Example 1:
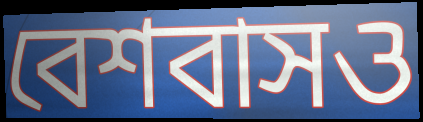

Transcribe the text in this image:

বেশবাসও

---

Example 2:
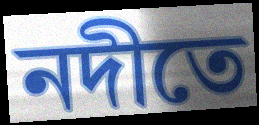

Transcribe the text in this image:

নদীতে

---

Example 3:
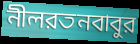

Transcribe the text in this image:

নীলরতনবাবুর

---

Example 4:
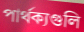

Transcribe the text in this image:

পার্থক্যগুলি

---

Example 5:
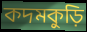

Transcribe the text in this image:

কদমকুড়ি